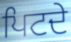
ਪਿਟਦੇ